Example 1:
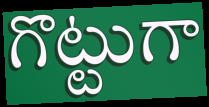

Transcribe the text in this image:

గొట్టుగా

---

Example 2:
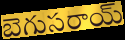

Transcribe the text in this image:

బెగుసరాయ్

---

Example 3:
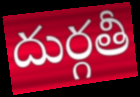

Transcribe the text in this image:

దుర్గతీ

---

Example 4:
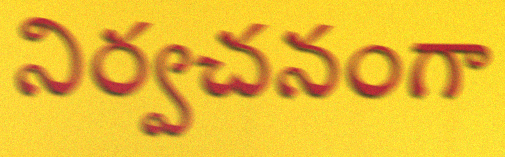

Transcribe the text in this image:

నిర్వచనంగా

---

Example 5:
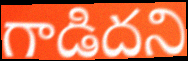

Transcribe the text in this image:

గాడిదని